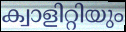
ക്വാളിറ്റിയും